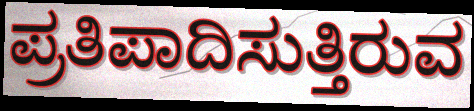
ಪ್ರತಿಪಾದಿಸುತ್ತಿರುವ